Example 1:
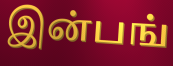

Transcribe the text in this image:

இன்பங்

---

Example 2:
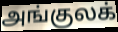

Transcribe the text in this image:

அங்குலக்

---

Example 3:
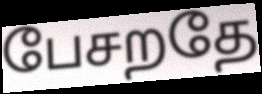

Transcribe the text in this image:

பேசறதே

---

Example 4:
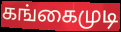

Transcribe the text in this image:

கங்கைமுடி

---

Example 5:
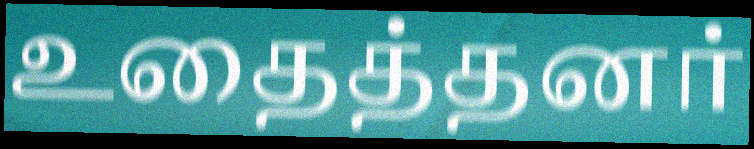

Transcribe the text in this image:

உதைத்தனர்